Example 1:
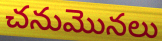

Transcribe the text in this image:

చనుమొనలు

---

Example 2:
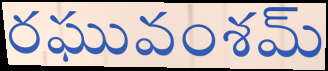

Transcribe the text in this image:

రఘువంశమ్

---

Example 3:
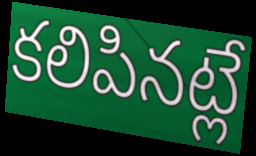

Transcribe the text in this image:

కలిపినట్లే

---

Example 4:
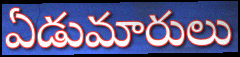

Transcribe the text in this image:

ఏడుమారులు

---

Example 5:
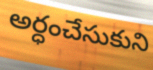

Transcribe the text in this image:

అర్ధంచేసుకుని